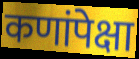
कणांपेक्षा